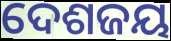
ଦେଶଜୟ